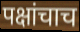
पक्षांचाच